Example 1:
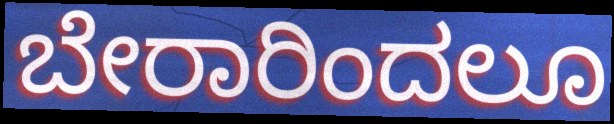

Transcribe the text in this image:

ಬೇರಾರಿಂದಲೂ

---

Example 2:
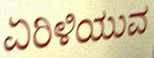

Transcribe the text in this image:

ಏರಿಳಿಯುವ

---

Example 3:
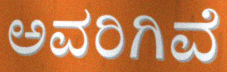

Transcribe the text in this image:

ಅವರಿಗಿವೆ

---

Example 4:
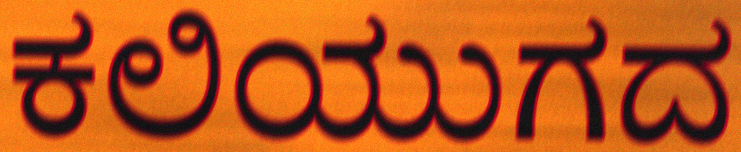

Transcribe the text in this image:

ಕಲಿಯುಗದ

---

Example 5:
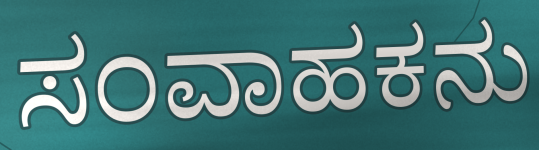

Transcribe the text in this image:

ಸಂವಾಹಕನು